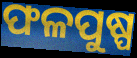
ଫଳପୁଷ୍ପ